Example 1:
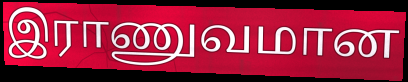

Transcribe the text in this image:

இராணுவமான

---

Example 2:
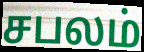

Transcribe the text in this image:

சபலம்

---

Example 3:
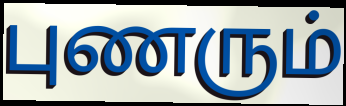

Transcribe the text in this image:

புணரும்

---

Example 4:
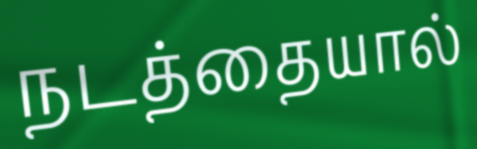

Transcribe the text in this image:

நடத்தையால்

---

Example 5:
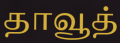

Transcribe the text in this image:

தாவூத்